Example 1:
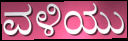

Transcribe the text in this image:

ವಳಿಯು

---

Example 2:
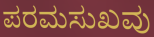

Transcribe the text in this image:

ಪರಮಸುಖವು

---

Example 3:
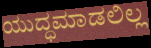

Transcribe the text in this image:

ಯುದ್ಧಮಾಡಲಿಲ್ಲ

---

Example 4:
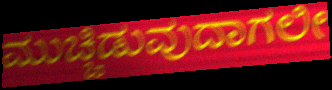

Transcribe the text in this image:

ಮುಚ್ಚಿಡುವುದಾಗಲೀ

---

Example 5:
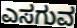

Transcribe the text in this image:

ಎಸಗುವ